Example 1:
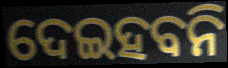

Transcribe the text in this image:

ଦେଇହବନି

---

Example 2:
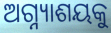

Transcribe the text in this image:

ଅଗ୍ନ୍ୟାଶୟକୁ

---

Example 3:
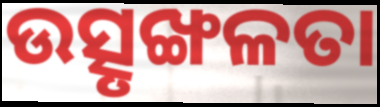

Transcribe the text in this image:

ଉତ୍ସୃଙ୍ଖଳତା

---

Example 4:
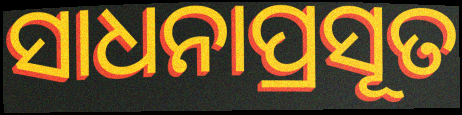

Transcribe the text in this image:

ସାଧନାପ୍ରସୂତ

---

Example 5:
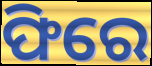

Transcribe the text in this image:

ଫିରେ